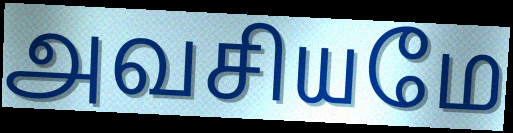
அவசியமே